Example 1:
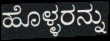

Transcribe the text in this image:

ಹೊಳ್ಳರನ್ನು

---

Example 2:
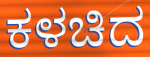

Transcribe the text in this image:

ಕಳಚಿದ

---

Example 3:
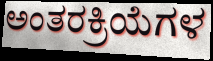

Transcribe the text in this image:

ಅಂತರಕ್ರಿಯೆಗಳ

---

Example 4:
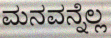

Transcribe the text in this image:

ಮನವನ್ನೆಲ್ಲ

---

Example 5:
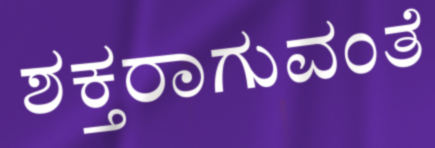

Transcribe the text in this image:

ಶಕ್ತರಾಗುವಂತೆ